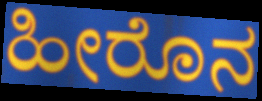
ಹೀರೊನ